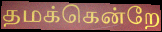
தமக்கென்றே